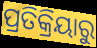
ପ୍ରତିକ୍ରିୟାରୁ